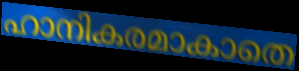
ഹാനികരമാകാതെ